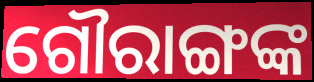
ଗୌରାଙ୍ଗଙ୍କ